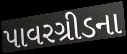
પાવરગ્રીડના